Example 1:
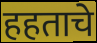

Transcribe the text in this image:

हहताचे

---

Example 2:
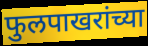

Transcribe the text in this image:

फुलपाखरांच्या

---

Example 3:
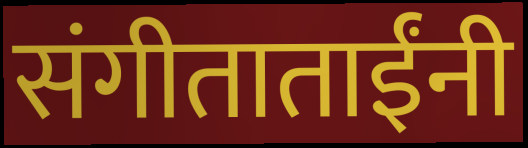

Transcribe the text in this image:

संगीताताईंनी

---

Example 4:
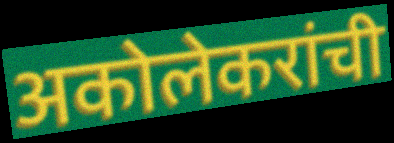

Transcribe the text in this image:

अकोलेकरांची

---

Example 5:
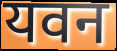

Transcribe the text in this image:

यवन